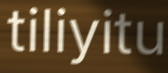
tiliyitu